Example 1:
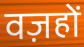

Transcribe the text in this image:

वज़हों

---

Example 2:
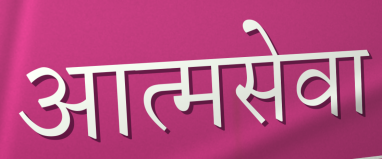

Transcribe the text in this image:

आत्मसेवा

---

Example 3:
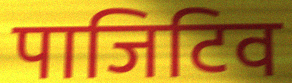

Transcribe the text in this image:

पाजिटिव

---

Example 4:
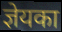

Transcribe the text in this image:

ज्ञेयका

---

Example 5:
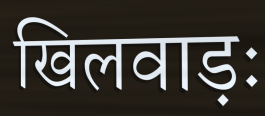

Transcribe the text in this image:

खिलवाड़ः